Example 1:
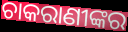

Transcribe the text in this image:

ଚାକରାଣୀଙ୍କର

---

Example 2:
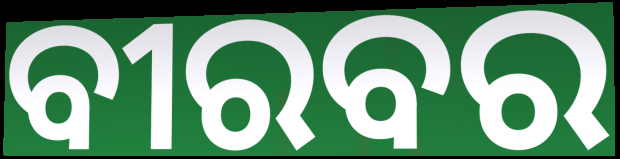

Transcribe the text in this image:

ବୀରବର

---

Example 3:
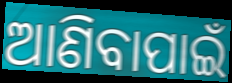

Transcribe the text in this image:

ଆଣିବାପାଇଁ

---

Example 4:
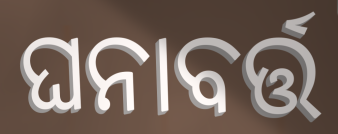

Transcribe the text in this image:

ଘନାବର୍ତ୍ତ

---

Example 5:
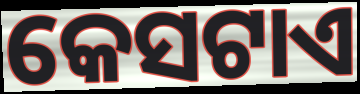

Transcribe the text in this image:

କେସଟାଏ